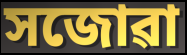
সজোৱা